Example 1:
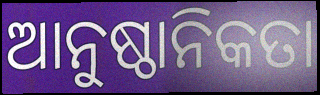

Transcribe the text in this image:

ଆନୁଷ୍ଠାନିକତା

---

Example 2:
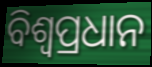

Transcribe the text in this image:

ବିଶ୍ୱପ୍ରଧାନ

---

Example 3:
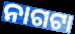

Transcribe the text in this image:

ନାଗଟା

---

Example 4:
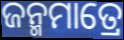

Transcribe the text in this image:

ଜନ୍ମମାତ୍ରେ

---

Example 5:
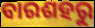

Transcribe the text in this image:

ବାରଶହରୁ